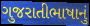
ગુજરાતીભાષાનું